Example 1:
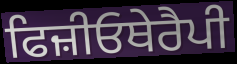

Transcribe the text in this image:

ਫਿਜ਼ੀਓਥੇਰੈਪੀ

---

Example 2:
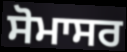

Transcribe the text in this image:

ਸੋਮਾਸਰ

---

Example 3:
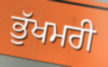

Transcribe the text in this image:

ਭੁੱਖਮਰੀ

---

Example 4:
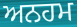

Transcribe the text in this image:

ਅਨਹਮ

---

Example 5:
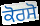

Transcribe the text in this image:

ਕੋਰਸੋ